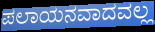
ಪಲಾಯನವಾದವಲ್ಲ